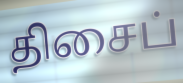
திசைப்